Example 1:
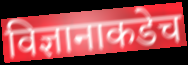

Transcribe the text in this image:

विज्ञानाकडेच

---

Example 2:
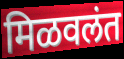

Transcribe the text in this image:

मिळवलंत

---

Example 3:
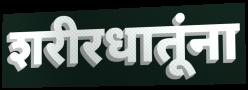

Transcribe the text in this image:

शरीरधातूंना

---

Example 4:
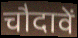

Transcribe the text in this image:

चौदावें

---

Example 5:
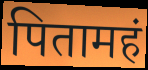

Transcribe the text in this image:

पितामहं